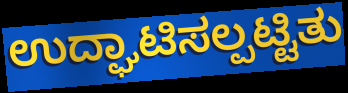
ಉದ್ಘಾಟಿಸಲ್ಪಟ್ಟಿತು